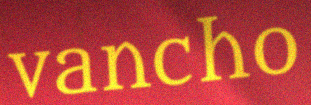
vancho